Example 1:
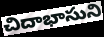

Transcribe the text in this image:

చిదాభాసుని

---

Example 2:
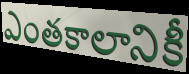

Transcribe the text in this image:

ఎంతకాలానికీ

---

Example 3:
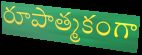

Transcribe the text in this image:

రూపాత్మకంగా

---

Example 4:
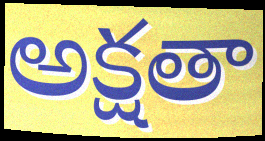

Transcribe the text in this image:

అక్షతా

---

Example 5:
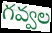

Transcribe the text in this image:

గవ్వల